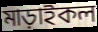
মাড়াইকল